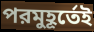
পরমুহূর্তেই